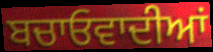
ਬਚਾਓਵਾਦੀਆਂ